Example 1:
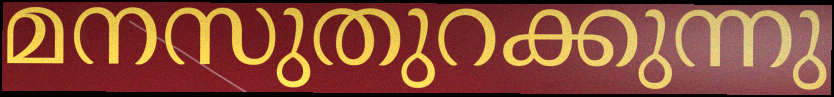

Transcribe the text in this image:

മനസുതുറക്കുന്നു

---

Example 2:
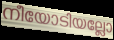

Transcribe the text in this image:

നീയോടിയല്ലോ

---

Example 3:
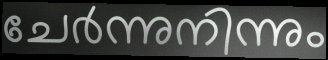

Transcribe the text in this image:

ചേർന്നുനിന്നും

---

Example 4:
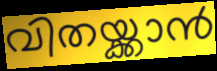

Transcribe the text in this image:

വിതയ്ക്കാൻ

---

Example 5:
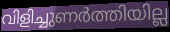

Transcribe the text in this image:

വിളിച്ചുണർത്തിയില്ല